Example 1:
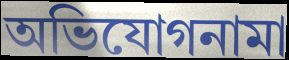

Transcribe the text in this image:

অভিযোগনামা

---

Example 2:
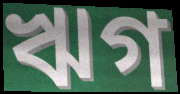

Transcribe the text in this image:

ঋগ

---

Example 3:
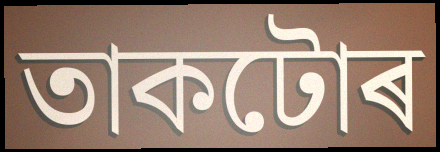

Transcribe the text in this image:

তাকটোৰ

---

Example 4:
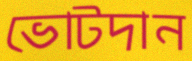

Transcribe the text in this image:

ভোটদান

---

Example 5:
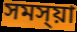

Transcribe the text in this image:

সমস্য়া